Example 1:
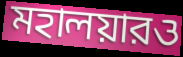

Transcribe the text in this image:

মহালয়ারও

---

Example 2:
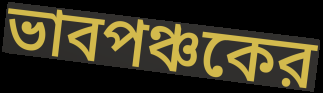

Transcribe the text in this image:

ভাবপঞ্চকের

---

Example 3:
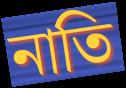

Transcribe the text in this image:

নাতি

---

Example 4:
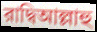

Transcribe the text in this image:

রাদ্বিআল্লাহু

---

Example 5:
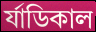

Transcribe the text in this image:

র্যাডিকাল